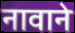
नावाने